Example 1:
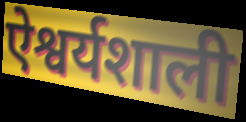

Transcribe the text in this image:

ऐश्वर्यशाली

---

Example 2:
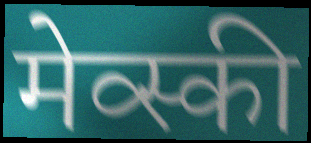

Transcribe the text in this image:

मेव्स्की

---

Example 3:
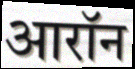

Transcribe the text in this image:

आरॉन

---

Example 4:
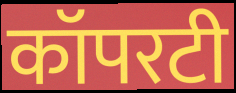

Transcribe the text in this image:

कॉपरटी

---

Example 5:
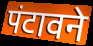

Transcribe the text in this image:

पंटावने